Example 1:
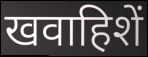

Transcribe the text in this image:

खवाहिशें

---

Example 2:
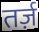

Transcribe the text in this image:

तर्ज़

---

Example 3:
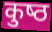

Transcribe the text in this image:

कुष्‍ठ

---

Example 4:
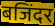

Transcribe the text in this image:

बजिंदर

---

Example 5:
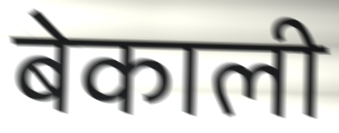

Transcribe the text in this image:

बेकाली